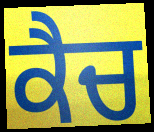
ਕੈਚ